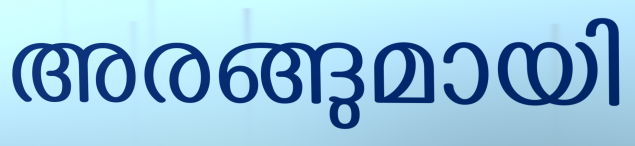
അരങ്ങുമായി